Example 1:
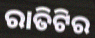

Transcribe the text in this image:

ରାତିଟିର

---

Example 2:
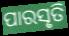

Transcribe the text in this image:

ପାରସୃତି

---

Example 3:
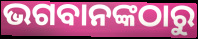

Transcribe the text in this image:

ଭଗବାନଙ୍କଠାରୁ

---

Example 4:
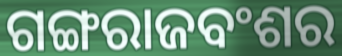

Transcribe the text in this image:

ଗଙ୍ଗରାଜବଂଶର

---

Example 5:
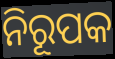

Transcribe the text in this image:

ନିରୂପକ